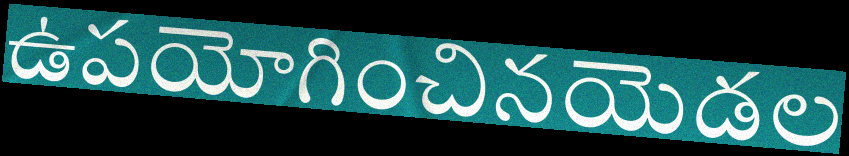
ఉపయోగించినయెడల